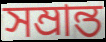
সম্রান্ত